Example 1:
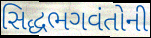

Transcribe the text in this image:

સિદ્ધભગવંતોની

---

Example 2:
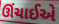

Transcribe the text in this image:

ઊંચાઈએ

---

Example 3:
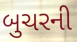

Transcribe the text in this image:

બુચરની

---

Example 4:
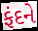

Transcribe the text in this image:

ફંદને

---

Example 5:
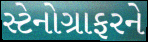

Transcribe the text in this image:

સ્ટેનોગ્રાફરને